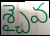
శ్చైవ